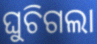
ଘୁଚିଗଲା